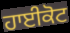
ਹਾਈਕੋਟ